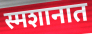
स्मशानात